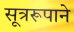
सूत्ररूपाने